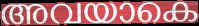
അവയാകെ